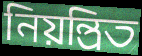
নিয়ন্ত্রিত